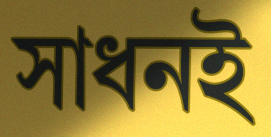
সাধনই